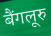
बैंगलूरु